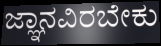
ಜ್ಞಾನವಿರಬೇಕು